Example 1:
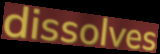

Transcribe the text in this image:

dissolves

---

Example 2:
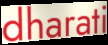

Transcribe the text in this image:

dharati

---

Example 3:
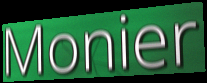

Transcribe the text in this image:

Monier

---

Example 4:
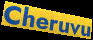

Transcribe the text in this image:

Cheruvu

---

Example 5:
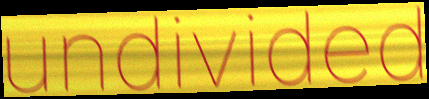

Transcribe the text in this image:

undivided